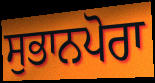
ਸੁਭਾਨਪੋਰਾ